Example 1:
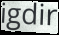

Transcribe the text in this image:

igdir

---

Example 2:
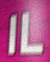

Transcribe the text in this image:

IL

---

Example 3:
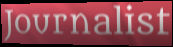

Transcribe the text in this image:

Journalist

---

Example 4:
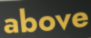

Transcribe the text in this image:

above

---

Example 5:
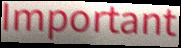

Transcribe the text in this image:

Important